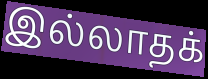
இல்லாதக்